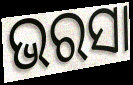
ଭରସା